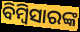
ବିମ୍ବିସାରଙ୍କ